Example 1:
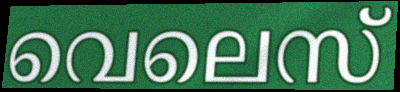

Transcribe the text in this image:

വെലെസ്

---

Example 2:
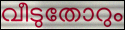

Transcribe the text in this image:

വീടുതോറും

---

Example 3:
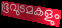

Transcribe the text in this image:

ഭൂവുടമകളും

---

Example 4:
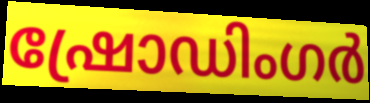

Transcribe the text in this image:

ഷ്രോഡിംഗർ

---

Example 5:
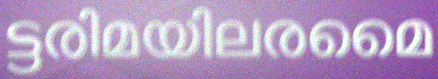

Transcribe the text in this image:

ട്ടരിമയിലരമൈ